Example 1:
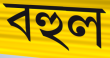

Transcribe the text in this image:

বহুল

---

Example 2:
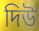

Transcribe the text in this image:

দিউ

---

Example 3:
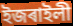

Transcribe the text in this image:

ইজৰাইলী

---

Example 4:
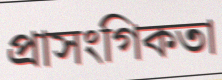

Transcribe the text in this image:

প্ৰাসংগিকতা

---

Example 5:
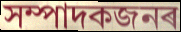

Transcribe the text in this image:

সম্পাদকজনৰ